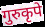
गुरुकृपे